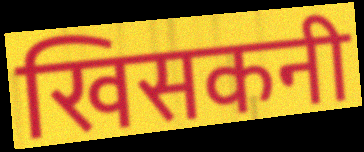
खिसकनी